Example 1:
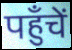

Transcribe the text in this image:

पहुँचें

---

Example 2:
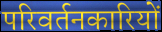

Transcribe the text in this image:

परिवर्तनकारियों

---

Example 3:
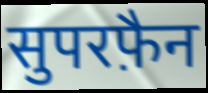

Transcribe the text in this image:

सुपरफ़ैन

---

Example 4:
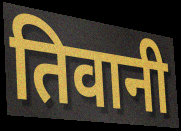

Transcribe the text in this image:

तिवानी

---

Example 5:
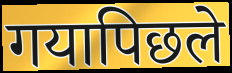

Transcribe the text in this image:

गयापिछले